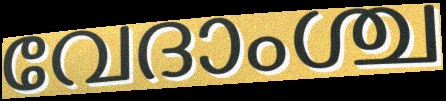
വേദാംശ്ച